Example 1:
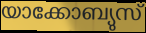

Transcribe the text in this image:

യാക്കോബ്യുസ്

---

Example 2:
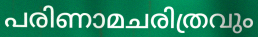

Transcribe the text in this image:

പരിണാമചരിത്രവും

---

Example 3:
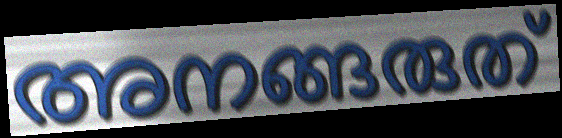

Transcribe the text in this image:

അനങ്ങരുത്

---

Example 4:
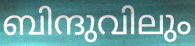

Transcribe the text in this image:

ബിന്ദുവിലും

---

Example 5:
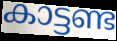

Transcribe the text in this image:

കാട്ടണ്ട